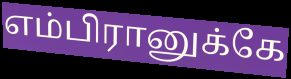
எம்பிரானுக்கே